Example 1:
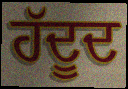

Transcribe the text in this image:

ਹੱਦੂਦ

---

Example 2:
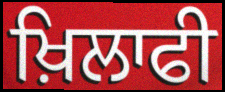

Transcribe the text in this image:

ਖ਼ਿਲਾਫੀ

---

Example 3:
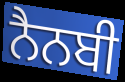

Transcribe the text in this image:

ਨੈਨਬੀ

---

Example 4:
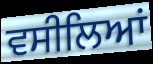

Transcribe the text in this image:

ਵਸੀਲਿਆਂ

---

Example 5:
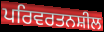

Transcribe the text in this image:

ਪਰਿਵਰਤਨਸ਼ੀਲ